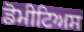
ਡੋਮੀਟਿਅਸ